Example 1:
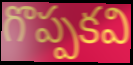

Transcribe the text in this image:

గొప్పకవి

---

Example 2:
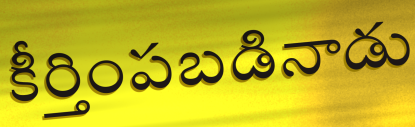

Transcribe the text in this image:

కీర్తింపబడినాడు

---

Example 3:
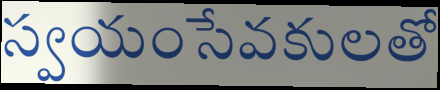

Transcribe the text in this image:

స్వయంసేవకులతో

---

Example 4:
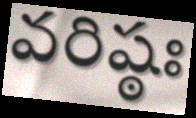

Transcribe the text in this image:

వరిష్ఠః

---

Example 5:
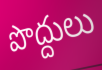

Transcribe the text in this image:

పొద్దులు